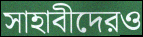
সাহাবীদেরও